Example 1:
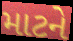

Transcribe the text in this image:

માટને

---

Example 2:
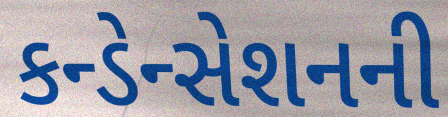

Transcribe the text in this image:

કન્ડેન્સેશનની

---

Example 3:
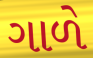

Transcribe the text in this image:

ગાળે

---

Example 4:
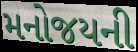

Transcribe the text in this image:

મનોજયની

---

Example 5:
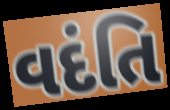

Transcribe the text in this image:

વદંતિ